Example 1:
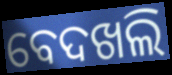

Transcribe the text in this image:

ବେଦଖଲି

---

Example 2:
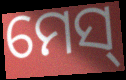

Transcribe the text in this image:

ମେସ୍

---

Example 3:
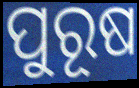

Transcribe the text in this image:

ପୁରୂଷ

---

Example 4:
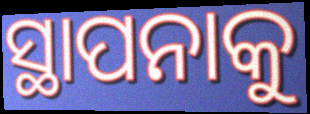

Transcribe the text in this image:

ସ୍ଥାପନାକୁ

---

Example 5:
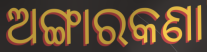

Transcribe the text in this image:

ଅଙ୍ଗାରକଣା